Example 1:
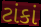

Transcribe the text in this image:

ટાંકાં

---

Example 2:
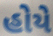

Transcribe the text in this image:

હોયે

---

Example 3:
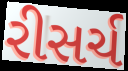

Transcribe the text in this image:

રીસર્ચ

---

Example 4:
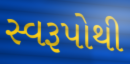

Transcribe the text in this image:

સ્વરૂપોથી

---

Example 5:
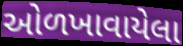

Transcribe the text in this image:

ઓળખાવાયેલા